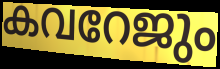
കവറേജും